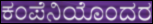
ಕಂಪೆನಿಯೊಂದರ